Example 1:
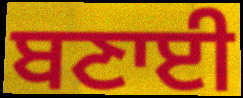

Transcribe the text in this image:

ਬਣਾਈ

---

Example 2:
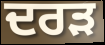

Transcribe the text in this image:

ਦਰੜ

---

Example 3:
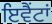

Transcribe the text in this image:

ਇਵੈਂਟਾਂ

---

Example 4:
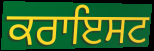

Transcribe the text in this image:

ਕਰਾਇਸਟ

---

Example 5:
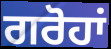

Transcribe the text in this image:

ਗਰੋਹਾਂ